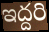
ఇద్దరి